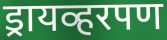
ड्रायव्हरपण